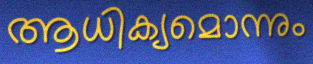
ആധിക്യമൊന്നും